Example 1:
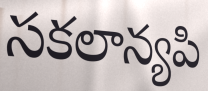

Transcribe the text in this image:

సకలాన్యపి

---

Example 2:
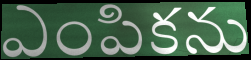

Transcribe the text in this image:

ఎంపికను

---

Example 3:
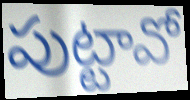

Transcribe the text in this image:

పుట్టావో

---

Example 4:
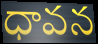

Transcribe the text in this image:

ధావన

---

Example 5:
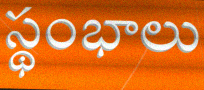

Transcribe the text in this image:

స్థంభాలు